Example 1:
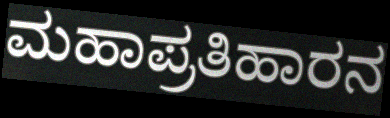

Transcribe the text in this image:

ಮಹಾಪ್ರತಿಹಾರನ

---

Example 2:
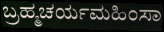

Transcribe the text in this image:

ಬ್ರಹ್ಮಚರ್ಯಮಹಿಂಸಾ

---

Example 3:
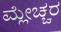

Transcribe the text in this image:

ಮ್ಲೇಚ್ಚರ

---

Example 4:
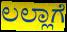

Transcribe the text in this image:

ಲಲ್ಲಾಗೆ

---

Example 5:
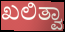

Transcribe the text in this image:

ಖಲಿತ್ವಾ